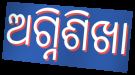
ଅଗ୍ନିଶିଖା